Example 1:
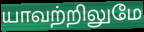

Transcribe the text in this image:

யாவற்றிலுமே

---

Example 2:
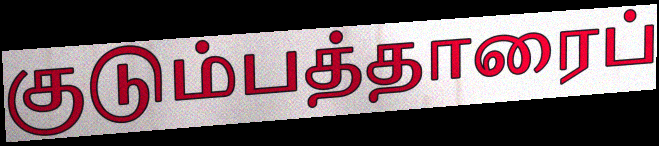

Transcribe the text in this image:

குடும்பத்தாரைப்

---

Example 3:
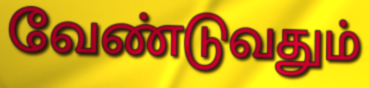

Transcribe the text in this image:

வேண்டுவதும்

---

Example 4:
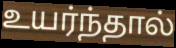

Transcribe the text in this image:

உயர்ந்தால்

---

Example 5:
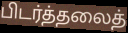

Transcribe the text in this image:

பிடர்த்தலைத்